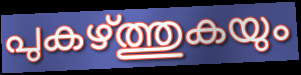
പുകഴ്ത്തുകയും